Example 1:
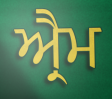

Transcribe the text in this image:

ਐ੍ਰਮ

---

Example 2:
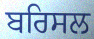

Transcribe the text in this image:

ਬਰਿਸਲ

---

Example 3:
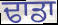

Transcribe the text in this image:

ਢਾਡਾ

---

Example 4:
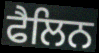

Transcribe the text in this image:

ਫੈਲਿਨ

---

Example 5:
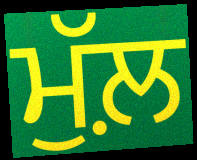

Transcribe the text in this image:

ਮੁੱਲ਼